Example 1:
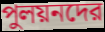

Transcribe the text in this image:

পুলয়নদের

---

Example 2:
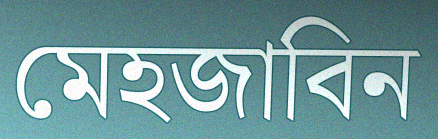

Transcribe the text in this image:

মেহজাবিন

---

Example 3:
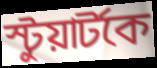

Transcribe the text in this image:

স্টুয়ার্টকে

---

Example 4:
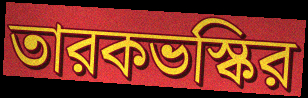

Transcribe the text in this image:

তারকভস্কির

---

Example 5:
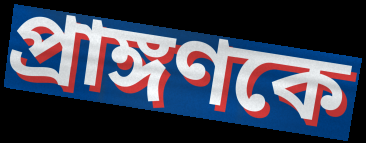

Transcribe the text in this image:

প্রাঙ্গণকে